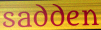
sadden